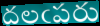
దలఁపరు